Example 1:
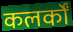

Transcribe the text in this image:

कलर्कों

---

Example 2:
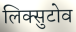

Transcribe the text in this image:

लिक्सुटोव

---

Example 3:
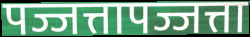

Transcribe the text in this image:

पज्जत्तापज्जत्ता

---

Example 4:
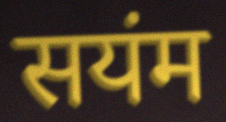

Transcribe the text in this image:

सयंम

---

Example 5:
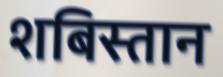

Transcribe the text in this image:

शबिस्तान